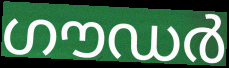
ഗൗഡർ